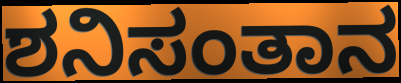
ಶನಿಸಂತಾನ